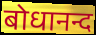
बोधानन्द